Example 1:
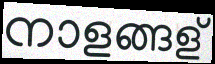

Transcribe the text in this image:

നാളങ്ങള്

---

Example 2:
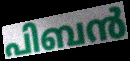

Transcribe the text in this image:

പിബൻ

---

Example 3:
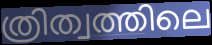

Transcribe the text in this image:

ത്രിത്വത്തിലെ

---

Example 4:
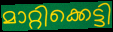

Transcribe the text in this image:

മാറ്റിക്കെട്ടി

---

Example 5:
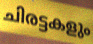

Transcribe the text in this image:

ചിരട്ടകളും